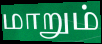
மாறும்